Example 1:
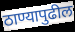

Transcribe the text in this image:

ठाण्यापुढील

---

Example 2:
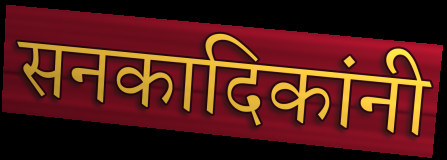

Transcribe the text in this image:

सनकादिकांनी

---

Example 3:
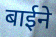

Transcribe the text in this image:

बाईने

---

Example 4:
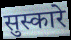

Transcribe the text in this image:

सुस्कारे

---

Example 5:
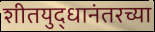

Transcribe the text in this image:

शीतयुद्धानंतरच्या